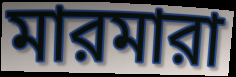
মারমারা